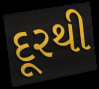
દૂરથી